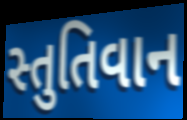
સ્તુતિવાન